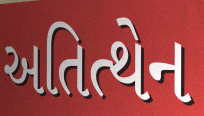
અતિત્થેન